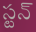
స్టన్